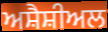
ਅਸ਼ੈਸ਼ੀਅਲ